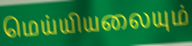
மெய்யியலையும்